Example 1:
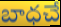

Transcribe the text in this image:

బాధచే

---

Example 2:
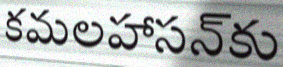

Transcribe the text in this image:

కమలహాసన్‌కు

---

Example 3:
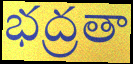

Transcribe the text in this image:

భద్రతా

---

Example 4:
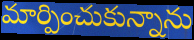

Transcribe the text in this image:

మార్పించుకున్నాను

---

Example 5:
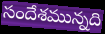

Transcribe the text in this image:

సందేశమున్నది